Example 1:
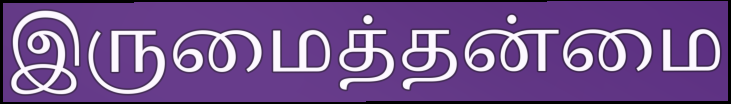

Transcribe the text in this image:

இருமைத்தன்மை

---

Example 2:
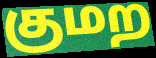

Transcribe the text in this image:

குமற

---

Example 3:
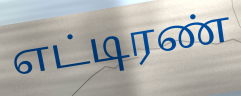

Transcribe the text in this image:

எட்டிரண்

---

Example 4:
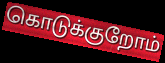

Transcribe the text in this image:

கொடுக்குறோம்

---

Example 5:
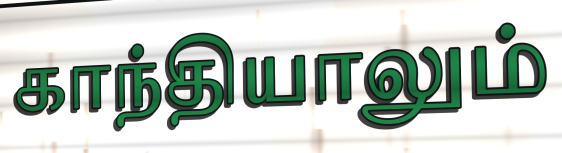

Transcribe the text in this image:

காந்தியாலும்